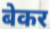
बेकर